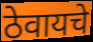
ठेवायचे